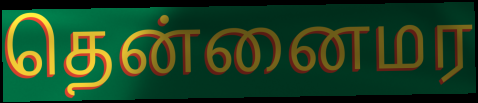
தென்னைமர